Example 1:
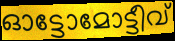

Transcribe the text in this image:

ഓട്ടോമോട്ടീവ്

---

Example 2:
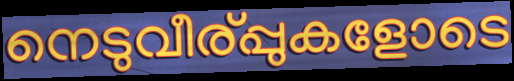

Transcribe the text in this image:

നെടുവീര്പ്പുകളോടെ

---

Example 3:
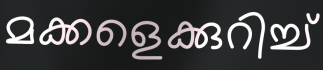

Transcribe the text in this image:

മക്കളെക്കുറിച്ച്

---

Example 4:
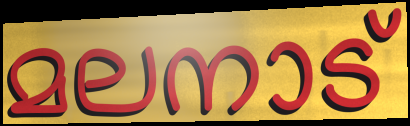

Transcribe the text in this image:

മലനാട്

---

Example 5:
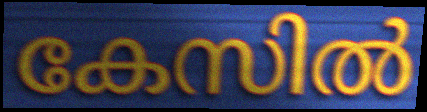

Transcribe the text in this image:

കേസിൽ